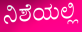
ನಿಶೆಯಲ್ಲಿ